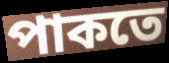
পাকতে